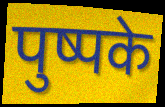
पुष्पके